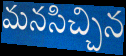
మనసిచ్చిన